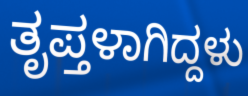
ತೃಪ್ತಳಾಗಿದ್ದಳು